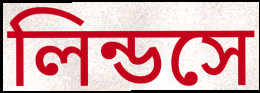
লিন্ডসে